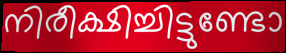
നിരീക്ഷിച്ചിട്ടുണ്ടോ